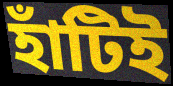
হাঁটিই